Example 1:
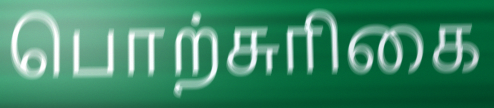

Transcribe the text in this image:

பொற்சுரிகை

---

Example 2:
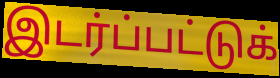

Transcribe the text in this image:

இடர்ப்பட்டுக்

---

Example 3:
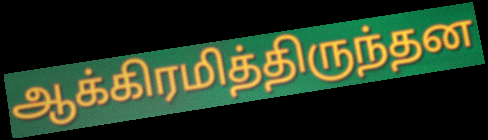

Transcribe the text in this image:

ஆக்கிரமித்திருந்தன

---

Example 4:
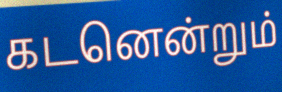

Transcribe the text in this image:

கடனென்றும்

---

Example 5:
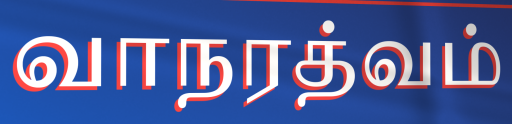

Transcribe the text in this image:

வாநரத்வம்